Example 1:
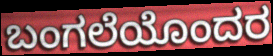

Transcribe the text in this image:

ಬಂಗಲೆಯೊಂದರ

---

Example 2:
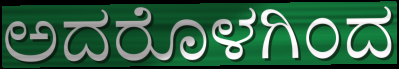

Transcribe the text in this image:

ಅದರೊಳಗಿಂದ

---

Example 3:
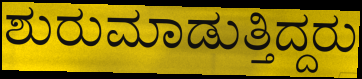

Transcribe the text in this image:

ಶುರುಮಾಡುತ್ತಿದ್ದರು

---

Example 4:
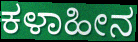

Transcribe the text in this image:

ಕಳಾಹೀನ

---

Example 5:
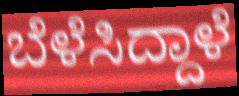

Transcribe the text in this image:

ಬೆಳೆಸಿದ್ದಾಳೆ